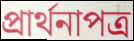
প্রার্থনাপত্র